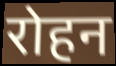
रोहन